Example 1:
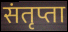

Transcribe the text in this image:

संतृप्ता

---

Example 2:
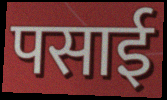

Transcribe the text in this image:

पसाई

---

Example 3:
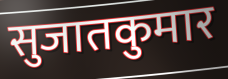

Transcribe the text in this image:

सुजातकुमार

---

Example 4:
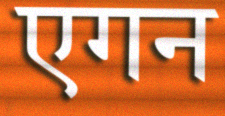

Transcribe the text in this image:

एगन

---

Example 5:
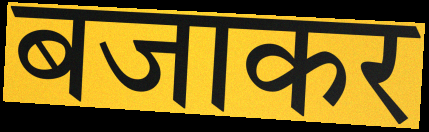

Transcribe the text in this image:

बजाकर